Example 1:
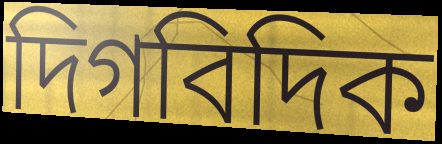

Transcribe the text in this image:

দিগবিদিক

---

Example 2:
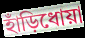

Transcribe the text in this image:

হাঁড়িধোয়া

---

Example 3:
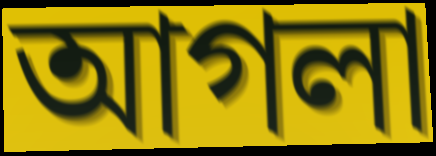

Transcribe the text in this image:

আগলা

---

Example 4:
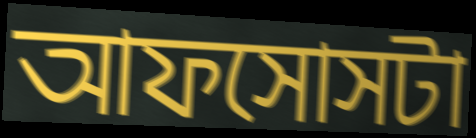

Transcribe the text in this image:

আফসোসটা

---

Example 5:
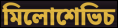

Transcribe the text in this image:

মিলোশেভিচ